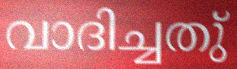
വാദിച്ചതു്